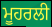
ਮੂਹਰਲੀ